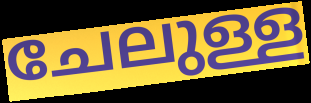
ചേലുള്ള